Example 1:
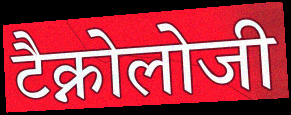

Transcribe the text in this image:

टैक्नोलोजी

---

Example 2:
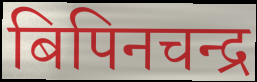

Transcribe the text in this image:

बिपिनचन्द्र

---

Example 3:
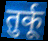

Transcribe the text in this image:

तुर्कू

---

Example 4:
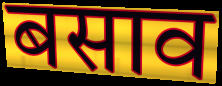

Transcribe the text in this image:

बसाव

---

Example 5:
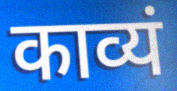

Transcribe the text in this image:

काव्यं